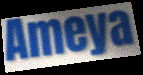
Ameya